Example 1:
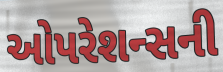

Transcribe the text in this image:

ઓપરેશન્સની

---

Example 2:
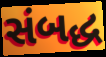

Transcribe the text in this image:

સંબદ્ધ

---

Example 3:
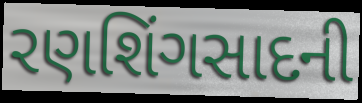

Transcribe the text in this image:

રણશિંગસાદની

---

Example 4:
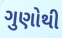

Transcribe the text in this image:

ગુણોથી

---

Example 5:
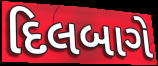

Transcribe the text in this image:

દિલબાગે